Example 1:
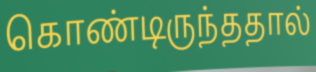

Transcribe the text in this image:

கொண்டிருந்ததால்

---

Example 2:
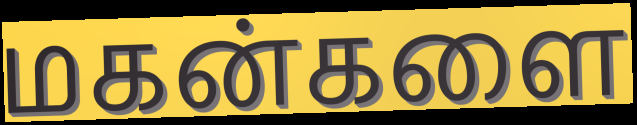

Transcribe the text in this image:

மகன்களை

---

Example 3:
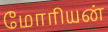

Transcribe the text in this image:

மோரியன்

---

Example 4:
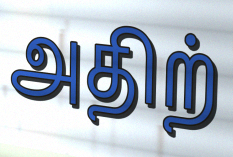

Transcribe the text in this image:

அதிற்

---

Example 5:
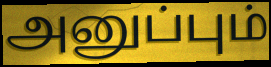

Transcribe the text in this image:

அனுப்பும்